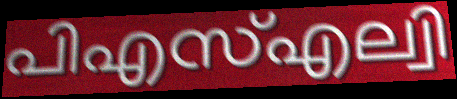
പിഎസ്എല്വി